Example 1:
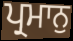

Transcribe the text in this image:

ਪ੍ਰਮਾਨੁ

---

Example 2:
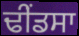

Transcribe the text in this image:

ਢੀੰਂਡਸਾ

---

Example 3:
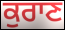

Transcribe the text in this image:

ਕੁਰਾਣ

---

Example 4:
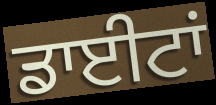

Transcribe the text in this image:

ਡਾਈਟਾਂ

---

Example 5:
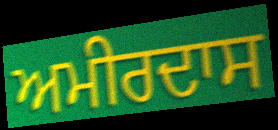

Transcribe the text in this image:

ਅਮੀਰਦਾਸ